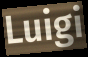
Luigi